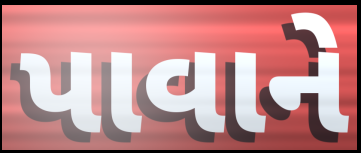
પાવાને